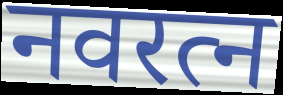
नवरत्न